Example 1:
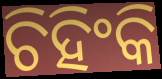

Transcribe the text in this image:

ଚିହିଂକି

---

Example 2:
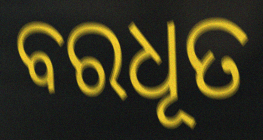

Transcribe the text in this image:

ବରଧୂତ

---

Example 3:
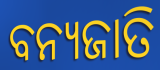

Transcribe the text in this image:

ବନ୍ୟଜାତି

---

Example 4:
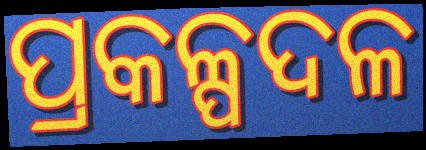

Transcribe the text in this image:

ପ୍ରକଳ୍ପଦଳ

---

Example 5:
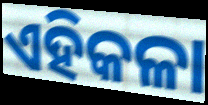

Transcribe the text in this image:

ଏହିକଳା